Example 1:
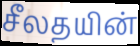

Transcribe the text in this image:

சீலதயின்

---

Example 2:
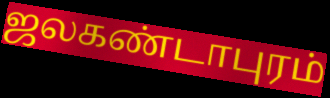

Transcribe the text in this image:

ஜலகண்டாபுரம்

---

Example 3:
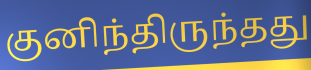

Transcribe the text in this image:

குனிந்திருந்தது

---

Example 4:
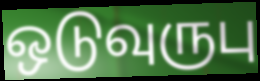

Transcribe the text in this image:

ஒடுவுருபு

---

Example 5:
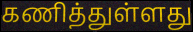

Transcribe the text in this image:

கணித்துள்ளது